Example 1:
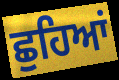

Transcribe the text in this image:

ਛੁਹਿਆਂ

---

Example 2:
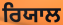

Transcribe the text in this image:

ਰਿਯਾਲ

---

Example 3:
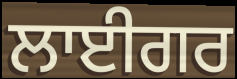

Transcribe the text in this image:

ਲਾਈਗਰ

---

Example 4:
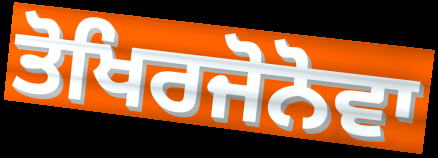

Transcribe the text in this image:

ਤੋਖਿਰਜੋਨੋਵਾ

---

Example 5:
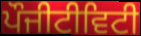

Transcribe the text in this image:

ਪੌਜੀਟੀਵਿਟੀ